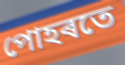
পোহৰতে